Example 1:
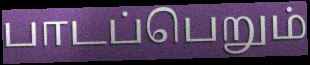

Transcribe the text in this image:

பாடப்பெறும்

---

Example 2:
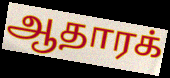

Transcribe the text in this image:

ஆதாரக்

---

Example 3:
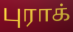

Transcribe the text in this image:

புராக்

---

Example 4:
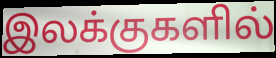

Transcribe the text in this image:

இலக்குகளில்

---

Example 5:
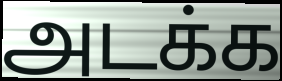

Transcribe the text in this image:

அடக்க